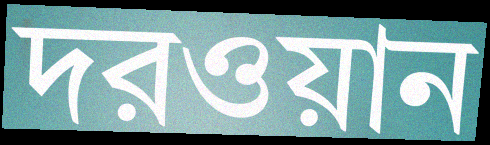
দরওয়ান